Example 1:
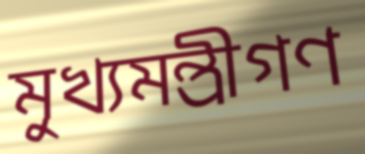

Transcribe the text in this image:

মুখ্যমন্ত্রীগণ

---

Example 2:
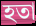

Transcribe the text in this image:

হতা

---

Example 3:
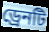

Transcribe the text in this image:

ড্রেনটি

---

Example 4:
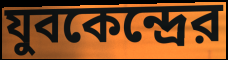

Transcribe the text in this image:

যুবকেন্দ্রের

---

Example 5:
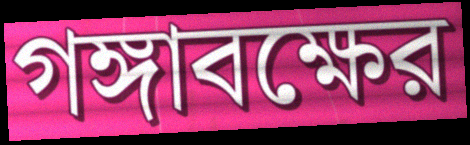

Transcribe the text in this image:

গঙ্গাবক্ষের